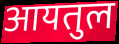
आयतुल